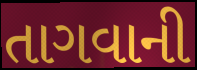
તાગવાની